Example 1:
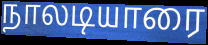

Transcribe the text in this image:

நாலடியாரை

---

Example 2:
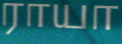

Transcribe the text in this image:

ராயா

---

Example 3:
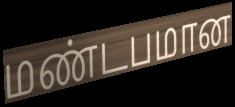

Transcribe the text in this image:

மண்டபமான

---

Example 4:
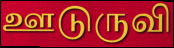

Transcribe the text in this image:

ஊடுருவி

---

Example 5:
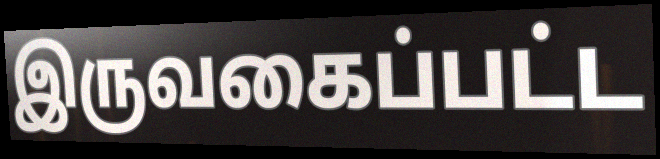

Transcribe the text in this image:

இருவகைப்பட்ட